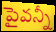
పైవన్నీ